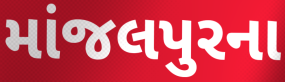
માંજલપુરના